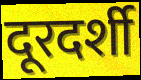
दूरदर्शी